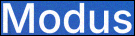
Modus